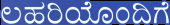
ಲಹರಿಯೊಂದಿಗೆ